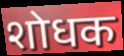
शोधक